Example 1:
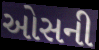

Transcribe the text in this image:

ઓસની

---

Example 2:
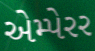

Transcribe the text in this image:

એમ્પેરર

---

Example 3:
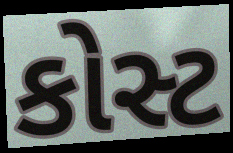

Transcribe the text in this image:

કોસ્ટ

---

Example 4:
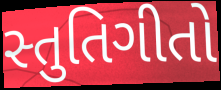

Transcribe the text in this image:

સ્તુતિગીતો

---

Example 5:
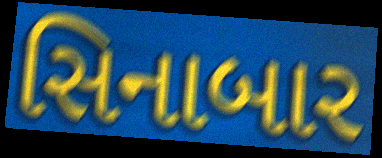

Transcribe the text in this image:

સિનાબાર